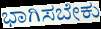
ಭಾಗಿಸಬೇಕು